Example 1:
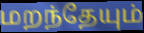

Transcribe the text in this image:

மறந்தேயும்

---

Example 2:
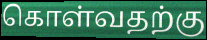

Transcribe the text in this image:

கொள்வதற்கு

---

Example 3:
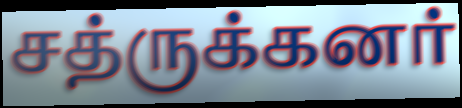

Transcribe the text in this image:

சத்ருக்கனர்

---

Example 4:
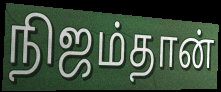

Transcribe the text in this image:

நிஜம்தான்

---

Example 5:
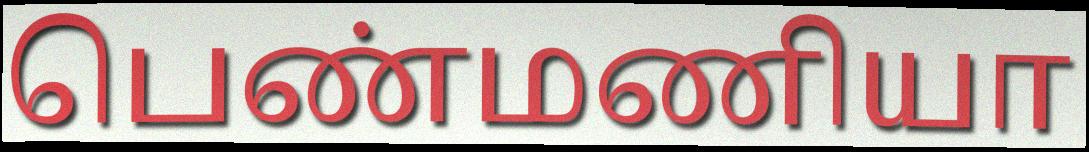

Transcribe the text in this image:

பெண்மணியா